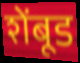
शेंबूड